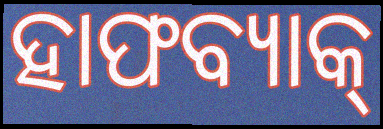
ହାଫବ୍ୟାକ୍